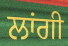
ਲਾਂਗੀ